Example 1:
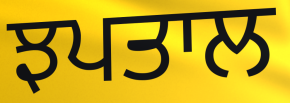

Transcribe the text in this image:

ਝਪਤਾਲ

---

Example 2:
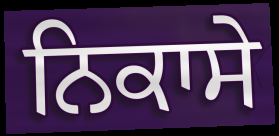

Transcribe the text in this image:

ਨਿਕਾਸੇ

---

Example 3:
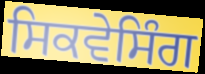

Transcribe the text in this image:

ਸਿਕਵੇਸਿੰਗ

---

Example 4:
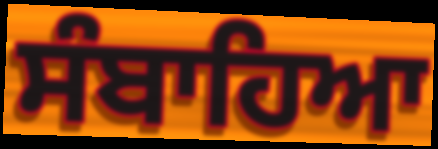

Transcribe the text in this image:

ਸੰਬਾਹਿਆ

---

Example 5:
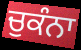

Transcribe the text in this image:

ਚੁਕੰਨਾ